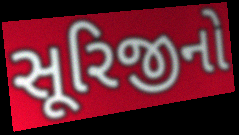
સૂરિજીનો